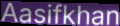
Aasifkhan